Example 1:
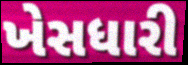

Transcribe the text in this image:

ખેસધારી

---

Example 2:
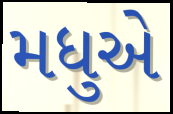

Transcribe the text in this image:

મધુએ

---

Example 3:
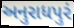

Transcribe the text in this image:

અનુરાધપુરં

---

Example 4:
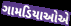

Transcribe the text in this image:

ગામડિયાઓએ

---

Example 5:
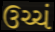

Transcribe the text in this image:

ઉચ્ચં